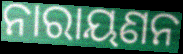
ନାରାୟଣନ